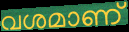
വശമാണ്